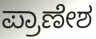
ಪ್ರಾಣೇಶ